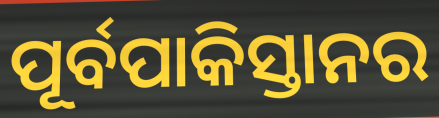
ପୂର୍ବପାକିସ୍ତାନର